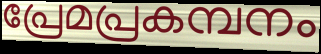
പ്രേമപ്രകമ്പനം